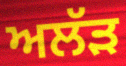
ਅਲੱੜ